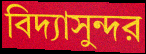
বিদ্যাসুন্দর